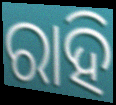
ରାହି